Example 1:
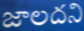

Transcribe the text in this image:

జాలదని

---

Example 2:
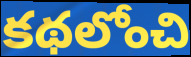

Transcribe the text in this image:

కథలోంచి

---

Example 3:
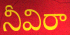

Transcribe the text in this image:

నీవిరా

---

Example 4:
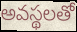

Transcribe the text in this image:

అవస్థలతో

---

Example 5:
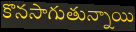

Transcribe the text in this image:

కొనసాగుతున్నాయి